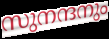
സുനന്ദനും